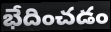
భేదించడం